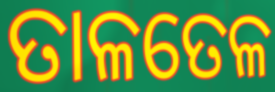
ତାଳତେଳ